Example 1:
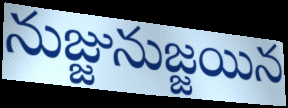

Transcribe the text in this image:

నుజ్జునుజ్జయిన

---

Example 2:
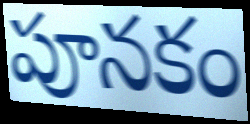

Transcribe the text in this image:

పూనకం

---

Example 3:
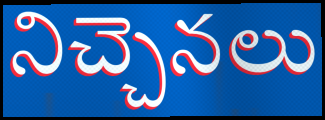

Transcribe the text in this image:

నిచ్చెనలు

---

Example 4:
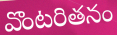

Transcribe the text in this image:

వొంటరితనం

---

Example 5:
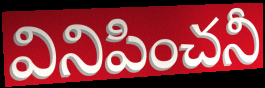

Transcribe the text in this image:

వినిపించనీ